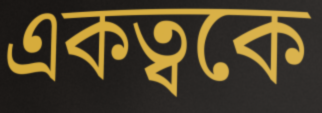
একত্বকে